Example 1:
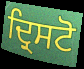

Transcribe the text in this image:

ਦ੍ਰਿਸਟੋ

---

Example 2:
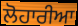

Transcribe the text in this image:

ਲੋਹਾਰੀਆ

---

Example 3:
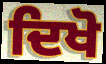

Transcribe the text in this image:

ਦਿਖੋ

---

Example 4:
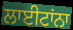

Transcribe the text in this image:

ਲਾਈਟਾਂਨਾ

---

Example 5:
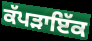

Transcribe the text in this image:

ਕੱਪੜਾਇੱਕ